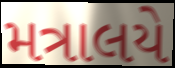
મત્રાલયે